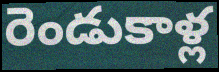
రెండుకాళ్ల